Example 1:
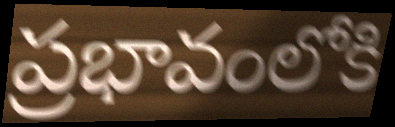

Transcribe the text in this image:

ప్రభావంలోకి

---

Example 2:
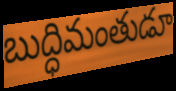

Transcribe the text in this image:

బుద్ధిమంతుడూ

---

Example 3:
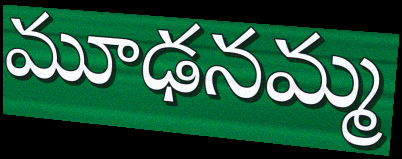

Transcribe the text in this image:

మూఢనమ్మ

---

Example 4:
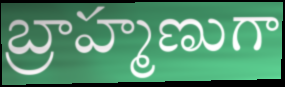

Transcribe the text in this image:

బ్రాహ్మణుగా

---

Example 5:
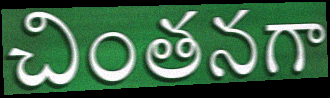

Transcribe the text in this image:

చింతనగా